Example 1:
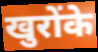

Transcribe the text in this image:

खुरोंके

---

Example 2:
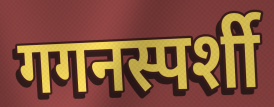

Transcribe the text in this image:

गगनस्पर्शी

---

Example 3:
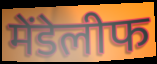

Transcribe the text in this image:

मेंडेलीफ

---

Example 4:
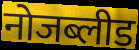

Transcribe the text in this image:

नोजब्लीड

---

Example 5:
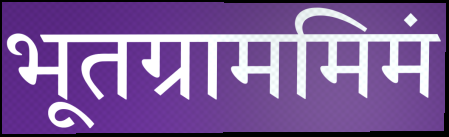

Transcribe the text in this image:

भूतग्राममिमं